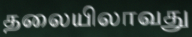
தலையிலாவது